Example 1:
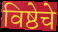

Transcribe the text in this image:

विष्ठेचे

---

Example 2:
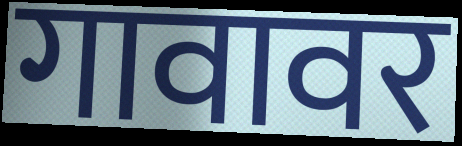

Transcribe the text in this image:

गावावर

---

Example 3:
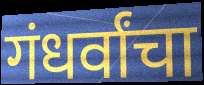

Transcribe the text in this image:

गंधर्वांचा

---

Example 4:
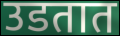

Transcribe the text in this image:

उडतात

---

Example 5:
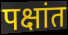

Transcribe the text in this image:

पक्षांत